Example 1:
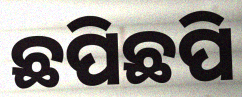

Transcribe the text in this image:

ଛପିଛପି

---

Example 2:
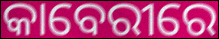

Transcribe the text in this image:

କାବେରୀରେ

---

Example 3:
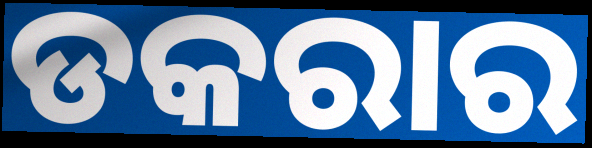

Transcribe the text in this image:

ଡକରାର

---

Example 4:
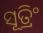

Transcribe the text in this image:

ସୂତ୍ରିଂ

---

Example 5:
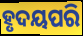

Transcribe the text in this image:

ହୃଦୟପରି